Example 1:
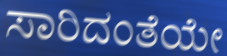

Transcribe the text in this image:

ಸಾರಿದಂತೆಯೇ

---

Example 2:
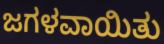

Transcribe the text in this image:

ಜಗಳವಾಯಿತು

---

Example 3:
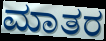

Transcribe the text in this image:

ಮಾತರ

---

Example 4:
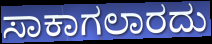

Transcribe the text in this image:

ಸಾಕಾಗಲಾರದು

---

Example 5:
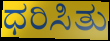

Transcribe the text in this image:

ಧರಿಸಿತು